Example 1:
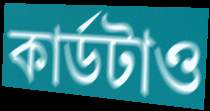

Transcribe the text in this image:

কার্ডটাও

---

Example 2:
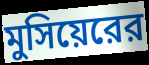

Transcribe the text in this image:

মুসিয়েরের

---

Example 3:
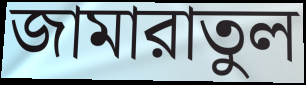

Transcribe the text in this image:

জামারাতুল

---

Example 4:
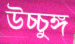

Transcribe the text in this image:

উচ্চুঙ্গ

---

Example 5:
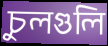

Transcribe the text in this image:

চুলগুলি